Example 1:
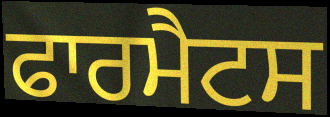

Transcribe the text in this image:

ਫਾਰਮੈਟਸ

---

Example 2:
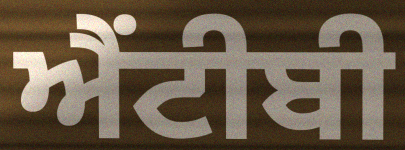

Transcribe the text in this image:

ਐਂਟੀਬੀ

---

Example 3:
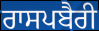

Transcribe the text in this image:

ਰਾਸਪਬੈਰੀ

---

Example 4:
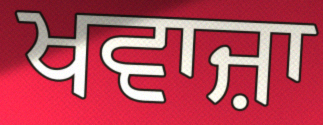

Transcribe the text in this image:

ਖਵਾਜ਼ਾ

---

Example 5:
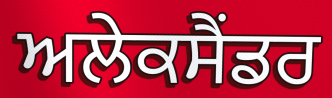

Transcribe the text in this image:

ਅਲੇਕਸੈਂਡਰ